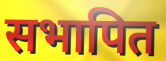
सभापित